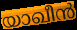
യാഖീൻ